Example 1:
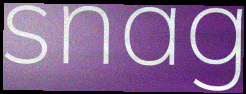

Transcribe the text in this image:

snag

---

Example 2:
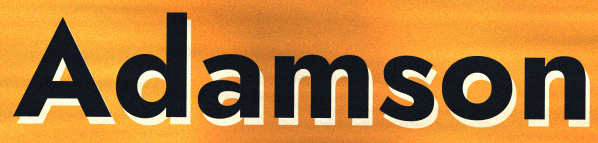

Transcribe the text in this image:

Adamson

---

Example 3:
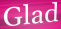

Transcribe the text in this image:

Glad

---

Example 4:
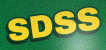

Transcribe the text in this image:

SDSS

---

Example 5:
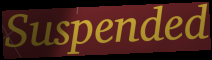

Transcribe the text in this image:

Suspended